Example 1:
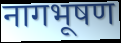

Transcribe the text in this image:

नागभूषण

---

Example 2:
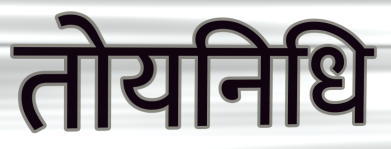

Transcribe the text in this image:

तोयनिधि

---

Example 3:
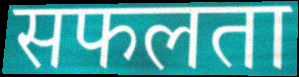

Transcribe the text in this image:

सफलता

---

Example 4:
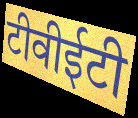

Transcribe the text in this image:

टीवीईटी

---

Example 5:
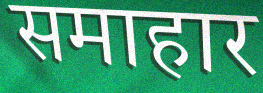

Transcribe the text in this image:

समाहार